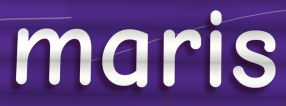
maris